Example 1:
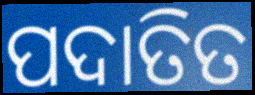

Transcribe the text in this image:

ପଦାତିତ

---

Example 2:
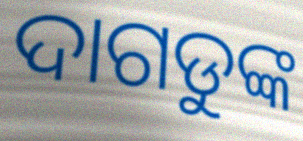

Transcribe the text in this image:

ଦାଗଡୁଙ୍କ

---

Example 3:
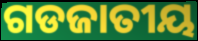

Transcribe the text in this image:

ଗଡଜାତୀୟ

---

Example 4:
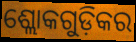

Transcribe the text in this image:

ଶ୍ଲୋକଗୁଡ଼ିକର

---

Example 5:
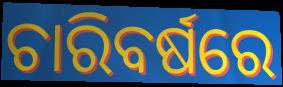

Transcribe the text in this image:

ଚାରିବର୍ଷରେ